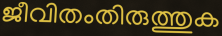
ജീവിതംതിരുത്തുക